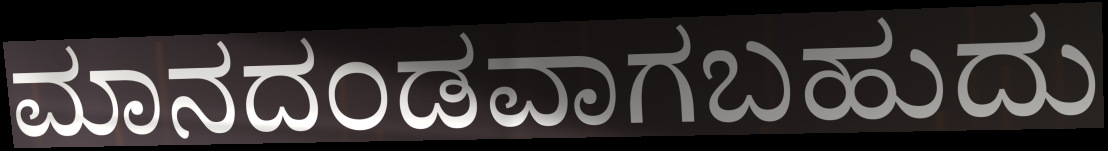
ಮಾನದಂಡವಾಗಬಹುದು